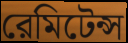
রেমিটেন্স